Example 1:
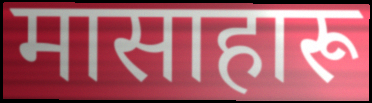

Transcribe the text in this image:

मासाहारू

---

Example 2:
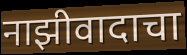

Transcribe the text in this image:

नाझीवादाचा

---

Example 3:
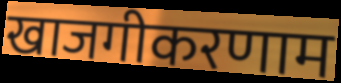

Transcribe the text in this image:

खाजगीकरणाम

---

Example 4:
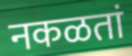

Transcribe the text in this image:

नकळतां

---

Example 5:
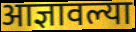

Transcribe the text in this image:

आज्ञावल्या